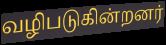
வழிபடுகின்றனர்